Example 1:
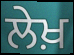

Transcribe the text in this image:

ਲੇਖ਼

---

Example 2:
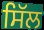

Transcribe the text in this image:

ਸਿੱਲ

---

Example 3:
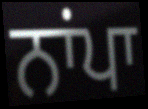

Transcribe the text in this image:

ਨਾਂਪਾ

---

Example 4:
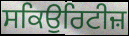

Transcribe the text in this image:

ਸਕਿਉਰਿਟੀਜ਼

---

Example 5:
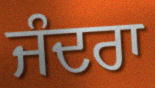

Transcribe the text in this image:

ਜੰਦਰਾ